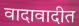
वादावादीत